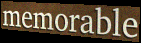
memorable